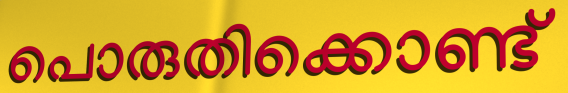
പൊരുതിക്കൊണ്ട്